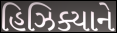
હિઝિક્યાને